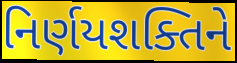
નિર્ણયશક્તિને